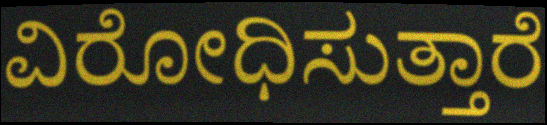
ವಿರೋಧಿಸುತ್ತಾರೆ